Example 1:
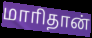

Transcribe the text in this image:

மாரிதான்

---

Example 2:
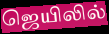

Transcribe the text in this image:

ஜெயிலில்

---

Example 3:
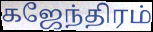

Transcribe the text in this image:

கஜேந்திரம்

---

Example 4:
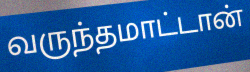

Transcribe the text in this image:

வருந்தமாட்டான்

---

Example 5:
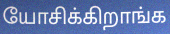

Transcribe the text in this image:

யோசிக்கிறாங்க